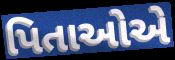
પિતાઓએ